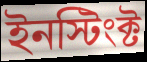
ইনস্টিংক্ট